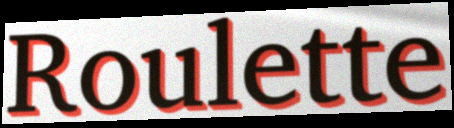
Roulette